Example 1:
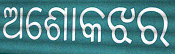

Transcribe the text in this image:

ଅଶୋକଝର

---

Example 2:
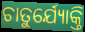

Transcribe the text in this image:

ଚାତୁର୍ଯ୍ୟୋକ୍ତି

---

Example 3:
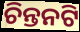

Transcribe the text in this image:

ଚିନ୍ତନଟି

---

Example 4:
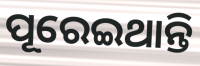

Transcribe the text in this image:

ପୂରେଇଥାନ୍ତି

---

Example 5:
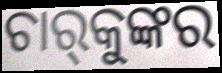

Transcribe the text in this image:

ଚାର୍‌କୁଙ୍କର